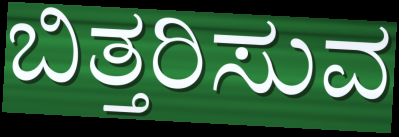
ಬಿತ್ತರಿಸುವ